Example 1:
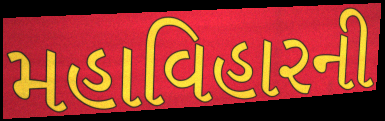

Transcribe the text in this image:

મહાવિહારની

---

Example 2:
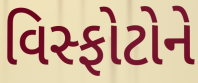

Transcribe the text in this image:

વિસ્ફોટોને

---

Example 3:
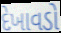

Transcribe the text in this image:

દેખાવડો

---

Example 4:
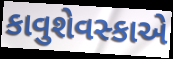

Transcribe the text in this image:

કાવુશેવસ્કાએ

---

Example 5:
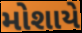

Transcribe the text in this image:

મોશાયે